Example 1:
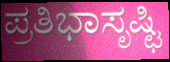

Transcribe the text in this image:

ಪ್ರತಿಭಾಸೃಷ್ಟಿ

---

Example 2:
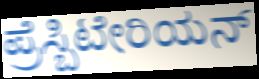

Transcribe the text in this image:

ಪ್ರೆಸ್ಬಿಟೇರಿಯನ್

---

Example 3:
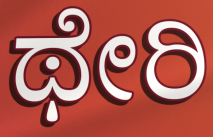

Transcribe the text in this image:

ಥೇರಿ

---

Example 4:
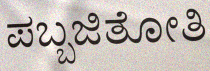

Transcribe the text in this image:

ಪಬ್ಬಜಿತೋತಿ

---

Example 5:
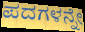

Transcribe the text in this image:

ಪದಗಳನ್ನೇ